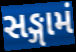
સઙ્ગામં